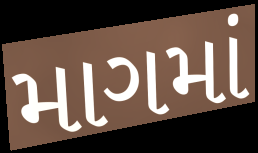
માગમાં